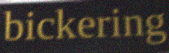
bickering